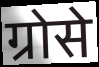
ग्रोसे